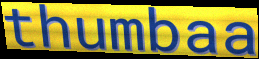
thumbaa